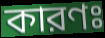
কারণঃ